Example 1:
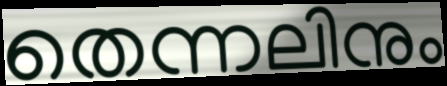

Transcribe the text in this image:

തെന്നലിനും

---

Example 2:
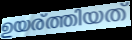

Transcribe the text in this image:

ഉയര്ത്തിയത്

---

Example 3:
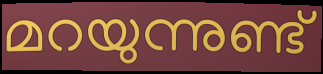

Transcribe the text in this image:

മറയുന്നുണ്ട്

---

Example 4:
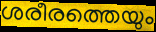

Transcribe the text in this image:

ശരീരത്തെയും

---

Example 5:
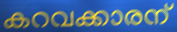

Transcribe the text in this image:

കറവക്കാരന്